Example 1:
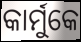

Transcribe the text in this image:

କାର୍ମୁକେ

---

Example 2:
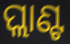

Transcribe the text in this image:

ପ୍ଲାଣ୍ଟ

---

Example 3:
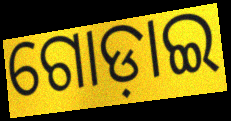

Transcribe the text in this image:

ଗୋଡ଼ାଇ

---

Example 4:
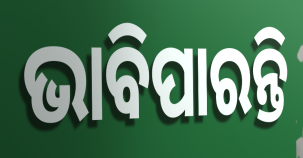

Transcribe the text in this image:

ଭାବିପାରନ୍ତି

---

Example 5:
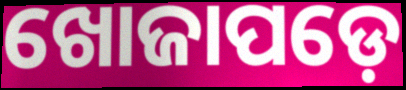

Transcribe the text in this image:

ଖୋଜାପଡ଼େ